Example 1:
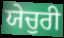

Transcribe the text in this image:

ਯੇਚੁਰੀ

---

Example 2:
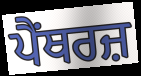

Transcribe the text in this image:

ਪੈਂਥਰਜ਼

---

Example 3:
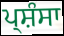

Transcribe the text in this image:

ਪ੍ਸ਼ੰਸਾ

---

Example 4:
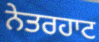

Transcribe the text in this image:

ਨੇਤਰਹਾਟ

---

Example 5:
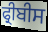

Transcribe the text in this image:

ਫ੍ਰੀਬੀਸ